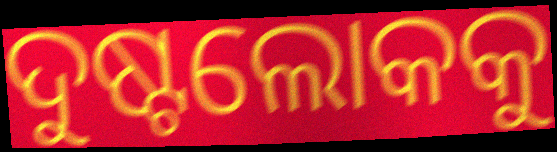
ଦୁଷ୍ଟଲୋକକୁ